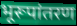
भूरूपांतरण